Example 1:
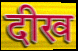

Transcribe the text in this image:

दीख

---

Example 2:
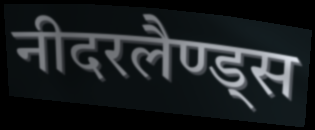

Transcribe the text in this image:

नीदरलैण्ड्स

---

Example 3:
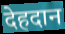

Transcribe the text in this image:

देहदान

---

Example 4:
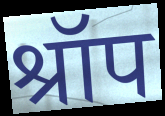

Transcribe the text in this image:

श्रॉप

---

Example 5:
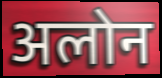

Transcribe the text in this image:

अलोन